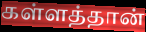
கள்ளத்தான்